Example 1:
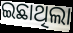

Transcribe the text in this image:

ଇଛାଥିଲା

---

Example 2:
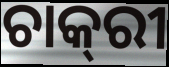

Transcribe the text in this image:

ଚାକ୍‌ରୀ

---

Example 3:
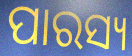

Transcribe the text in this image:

ପାରସ୍ଯ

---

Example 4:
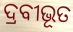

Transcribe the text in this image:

ଦ୍ରବୀଭୂତ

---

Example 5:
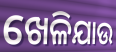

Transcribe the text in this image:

ଖେଳିଯାଉ